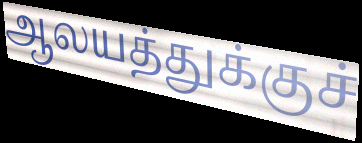
ஆலயத்துக்குச்